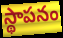
స్థాపనం